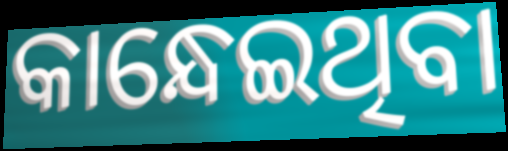
କାନ୍ଧେଇଥିବା